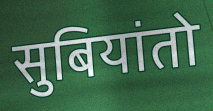
सुबियांतो